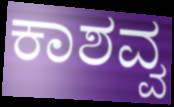
ಕಾಶವ್ವ